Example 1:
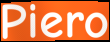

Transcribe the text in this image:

Piero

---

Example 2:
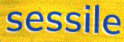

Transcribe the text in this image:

sessile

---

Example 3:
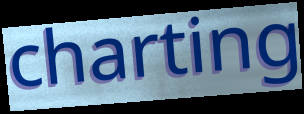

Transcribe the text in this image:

charting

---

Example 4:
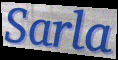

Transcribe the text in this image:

Sarla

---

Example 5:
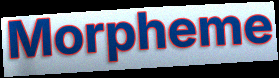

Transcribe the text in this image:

Morpheme